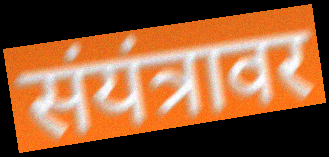
संयंत्रावर